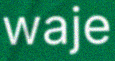
waje